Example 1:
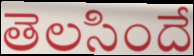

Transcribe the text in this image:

తెలసిందే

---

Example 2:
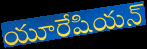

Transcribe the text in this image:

యూరేషియన్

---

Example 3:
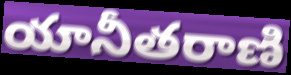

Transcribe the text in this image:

యానీతరాణి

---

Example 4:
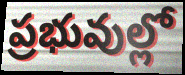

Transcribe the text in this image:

ప్రభువుల్లో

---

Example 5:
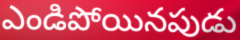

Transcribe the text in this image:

ఎండిపోయినపుడు